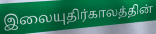
இலையுதிர்காலத்தின்